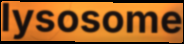
lysosome